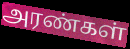
அரண்கள்